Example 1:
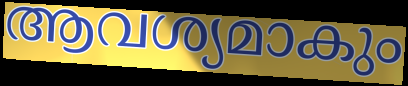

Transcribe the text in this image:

ആവശ്യമാകും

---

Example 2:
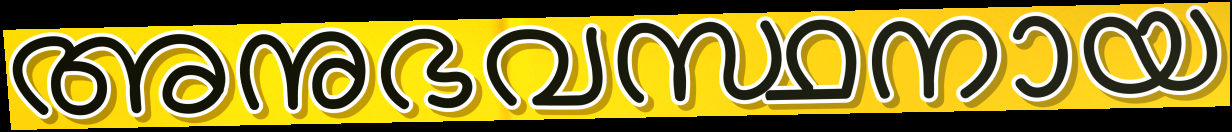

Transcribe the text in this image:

അനുഭവസ്ഥനായ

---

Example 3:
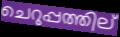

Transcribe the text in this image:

ചെറുപ്പത്തില്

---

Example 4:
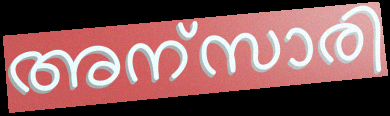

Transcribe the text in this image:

അന്സാരി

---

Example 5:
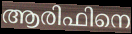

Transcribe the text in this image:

ആരിഫിനെ